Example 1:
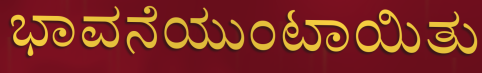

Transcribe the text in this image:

ಭಾವನೆಯುಂಟಾಯಿತು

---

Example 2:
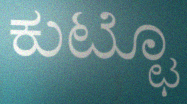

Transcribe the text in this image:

ಕುಟ್ಟೊ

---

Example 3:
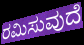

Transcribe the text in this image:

ರಮಿಸುವುದೆ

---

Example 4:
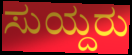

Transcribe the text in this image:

ಸುಯ್ದರು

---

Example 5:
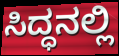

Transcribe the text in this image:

ಸಿದ್ಧನಲ್ಲಿ